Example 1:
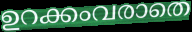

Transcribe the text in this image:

ഉറക്കംവരാതെ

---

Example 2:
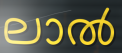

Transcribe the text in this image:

ലാൽ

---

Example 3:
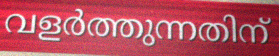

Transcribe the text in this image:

വളർത്തുന്നതിന്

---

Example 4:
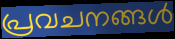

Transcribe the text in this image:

പ്രവചനങ്ങൾ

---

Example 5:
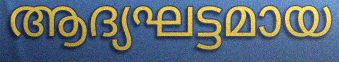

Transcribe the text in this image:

ആദ്യഘട്ടമായ